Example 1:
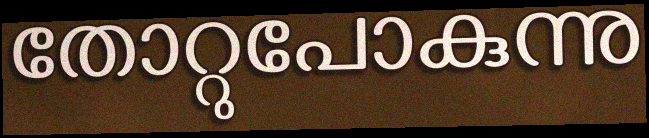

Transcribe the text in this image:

തോറ്റുപോകുന്നു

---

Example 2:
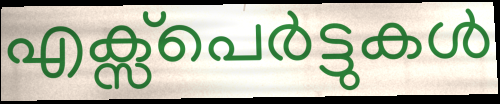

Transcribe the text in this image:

എക്സ്പെർട്ടുകൾ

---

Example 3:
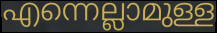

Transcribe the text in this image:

എന്നെല്ലാമുള്ള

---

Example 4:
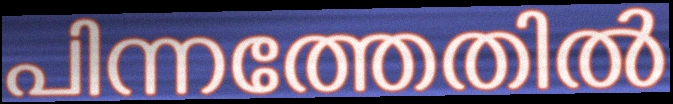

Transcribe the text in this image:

പിന്നത്തേതിൽ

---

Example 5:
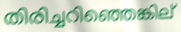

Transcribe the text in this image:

തിരിച്ചറിഞ്ഞെങ്കില്